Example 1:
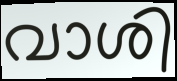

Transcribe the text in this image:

വാശി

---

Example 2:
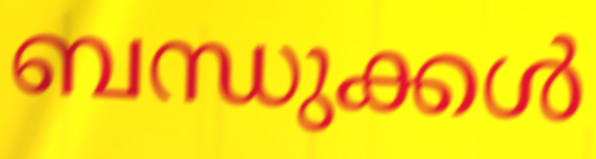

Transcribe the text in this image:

ബന്ധുക്കൾ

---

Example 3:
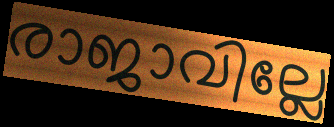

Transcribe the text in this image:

രാജാവില്ലേ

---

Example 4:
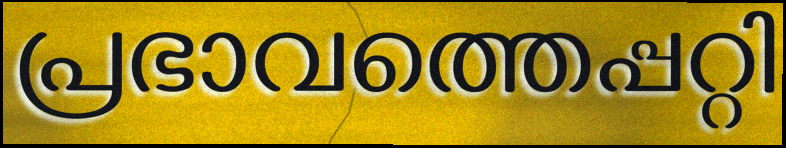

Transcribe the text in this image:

പ്രഭാവത്തെപ്പറ്റി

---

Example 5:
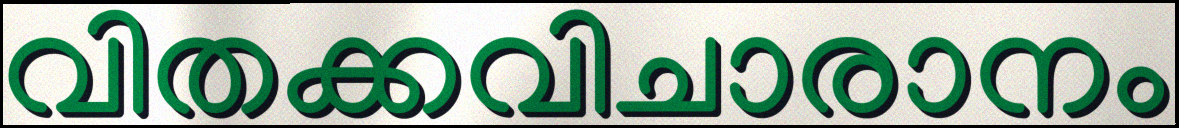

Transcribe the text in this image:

വിതക്കവിചാരാനം